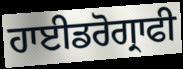
ਹਾਈਡਰੋਗ੍ਰਾਫੀ